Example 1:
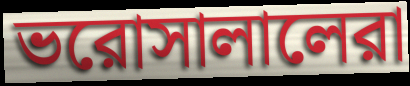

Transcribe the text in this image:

ভরোসালালেরা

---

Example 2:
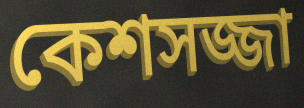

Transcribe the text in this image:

কেশসজ্জা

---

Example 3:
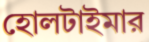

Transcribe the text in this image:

হোলটাইমার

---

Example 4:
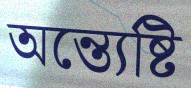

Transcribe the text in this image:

অন্ত্যেষ্টি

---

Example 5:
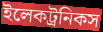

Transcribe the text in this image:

ইলেকট্রনিকস